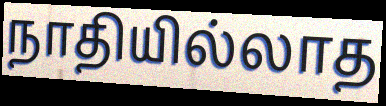
நாதியில்லாத